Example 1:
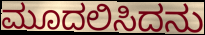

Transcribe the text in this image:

ಮೂದಲಿಸಿದನು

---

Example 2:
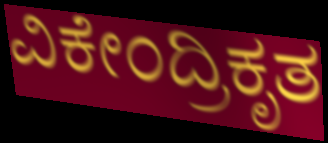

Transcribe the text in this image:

ವಿಕೇಂದ್ರಿಕೃತ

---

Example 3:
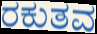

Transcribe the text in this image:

ರಕುತವ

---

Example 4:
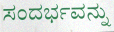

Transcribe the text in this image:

ಸಂದರ್ಭವನ್ನು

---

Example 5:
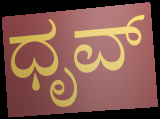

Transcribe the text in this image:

ಧೃವ್